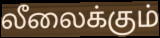
லீலைக்கும்